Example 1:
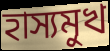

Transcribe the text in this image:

হাস্যমুখ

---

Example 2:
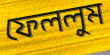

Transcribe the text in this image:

ফেললুম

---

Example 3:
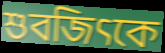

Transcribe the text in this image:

শুবজিৎকে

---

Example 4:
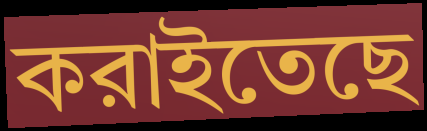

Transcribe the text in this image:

করাইতেছে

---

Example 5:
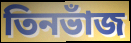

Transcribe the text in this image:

তিনভাঁজ